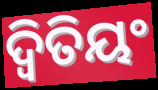
ଦ୍ୱିତିୟଂ